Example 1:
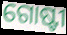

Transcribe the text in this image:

ଗୋଷ୍ଟୀ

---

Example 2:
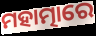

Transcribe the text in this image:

ମହାତ୍ମାରେ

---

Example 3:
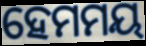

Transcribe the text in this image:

ହେମମୟ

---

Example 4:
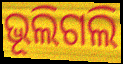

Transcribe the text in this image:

ଭୂଲିଗଲି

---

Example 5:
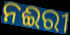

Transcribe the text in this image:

ନଈରୀ